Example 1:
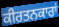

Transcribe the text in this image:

ਕੀਰਤਨਕਾਰਾਂ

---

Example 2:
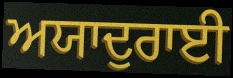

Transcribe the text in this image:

ਅਯਾਦੁਰਾਈ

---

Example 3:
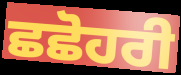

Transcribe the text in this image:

ਛਛੋਹਰੀ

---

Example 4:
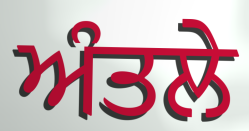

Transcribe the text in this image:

ਅੰਤਲੇ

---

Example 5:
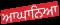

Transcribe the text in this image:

ਆਘਾਨਿਆ